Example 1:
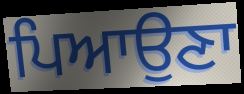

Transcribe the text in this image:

ਪਿਆਉਣਾ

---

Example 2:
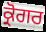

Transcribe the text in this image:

ਕ੍ਰੋਗਰ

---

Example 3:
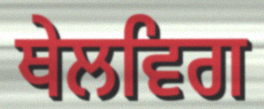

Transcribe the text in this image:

ਥੇਲਵਿਗ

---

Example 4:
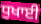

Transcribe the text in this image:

ਧੁਖਾਈ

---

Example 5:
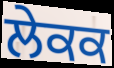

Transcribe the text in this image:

ਲੇਕਕ